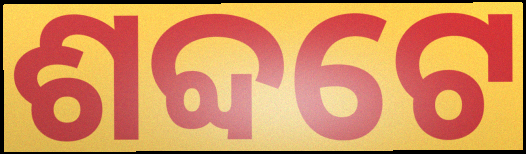
ଶବ୍ଦଟେ